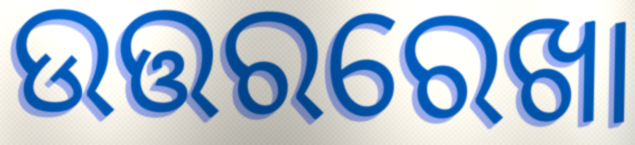
ଉତ୍ତରରେଖା